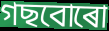
গছবোৰো